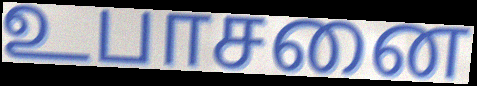
உபாசனை